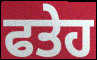
ਫਤੇਹ